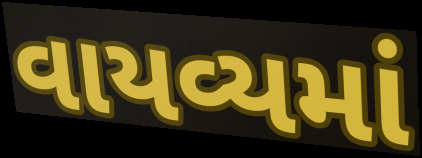
વાયવ્યમાં